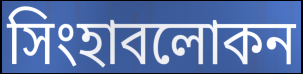
সিংহাবলোকন